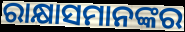
ରାକ୍ଷାସମାନଙ୍କର